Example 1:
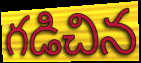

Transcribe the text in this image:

గడిచిన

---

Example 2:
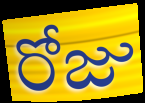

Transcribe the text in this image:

రోజు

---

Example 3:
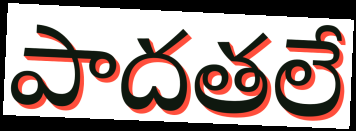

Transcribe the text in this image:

పాదతలే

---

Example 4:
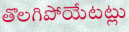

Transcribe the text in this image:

తొలగిపోయేటట్లు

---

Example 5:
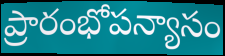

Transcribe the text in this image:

ప్రారంభోపన్యాసం